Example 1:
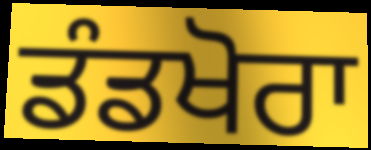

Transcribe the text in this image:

ਡੰਡਖੋਰਾ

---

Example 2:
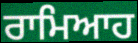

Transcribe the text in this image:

ਰਾਮਿਆਹ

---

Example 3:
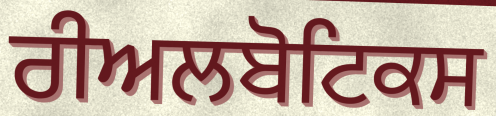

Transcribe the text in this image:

ਰੀਅਲਬੋਟਿਕਸ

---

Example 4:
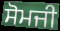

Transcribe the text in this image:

ਸੋਮਜੀ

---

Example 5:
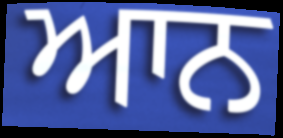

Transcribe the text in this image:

ਆਨ